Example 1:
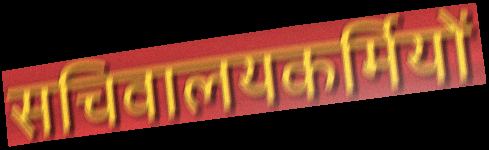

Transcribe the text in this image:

सचिवालयकर्मियों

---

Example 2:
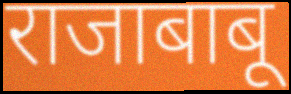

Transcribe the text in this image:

राजाबाबू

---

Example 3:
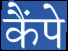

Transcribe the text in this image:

कैंपे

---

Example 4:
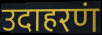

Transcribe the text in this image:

उदाहरणं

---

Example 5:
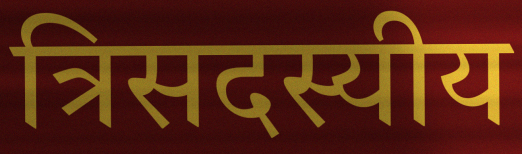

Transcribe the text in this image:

त्रिसदस्यीय